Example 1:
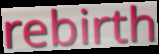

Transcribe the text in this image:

rebirth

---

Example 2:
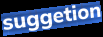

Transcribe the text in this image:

suggetion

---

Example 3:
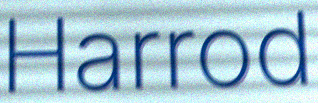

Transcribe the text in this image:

Harrod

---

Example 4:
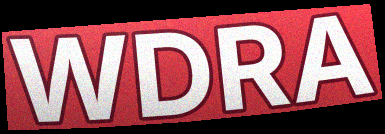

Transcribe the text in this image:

WDRA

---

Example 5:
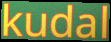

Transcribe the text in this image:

kudal